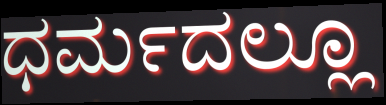
ಧರ್ಮದಲ್ಲೂ